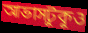
আভাসটুকুও